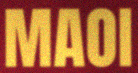
MAOI